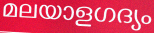
മലയാളഗദ്യം